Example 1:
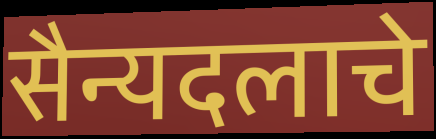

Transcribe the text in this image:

सैन्यदलाचे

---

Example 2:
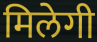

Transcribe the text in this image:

मिलेगी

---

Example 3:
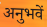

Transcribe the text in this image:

अनुभवें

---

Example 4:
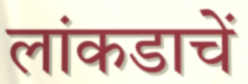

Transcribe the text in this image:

लांकडाचें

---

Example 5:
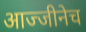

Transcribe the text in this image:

आज्जीनेच